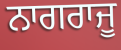
ਨਾਗਰਾਜੂ